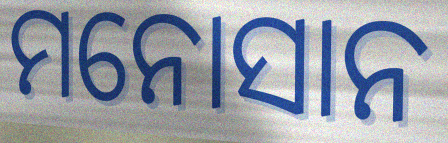
ମନୋସାନ